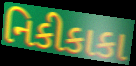
નિકીકાકા